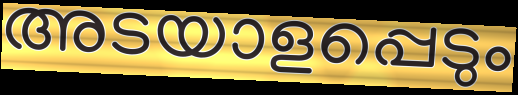
അടയാളപ്പെടും